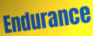
Endurance